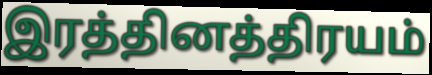
இரத்தினத்திரயம்